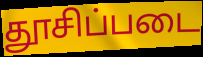
தூசிப்படை